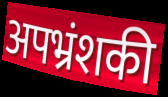
अपभ्रंशकी